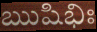
ఋషిభిః